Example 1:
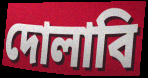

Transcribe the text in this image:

দোলাবি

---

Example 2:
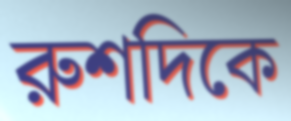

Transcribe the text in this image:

রুশদিকে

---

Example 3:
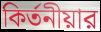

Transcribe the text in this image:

কির্তনীয়ার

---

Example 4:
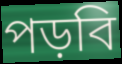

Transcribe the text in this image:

পড়বি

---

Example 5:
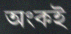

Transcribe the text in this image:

অংকই